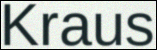
Kraus